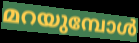
മറയുമ്പോൾ